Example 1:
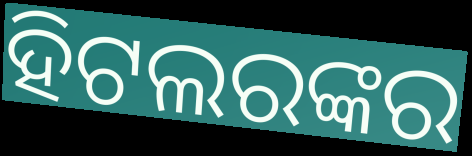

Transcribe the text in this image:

ହିଟଲରଙ୍କର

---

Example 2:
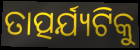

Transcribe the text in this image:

ତାତ୍ପର୍ଯ୍ୟଟିକୁ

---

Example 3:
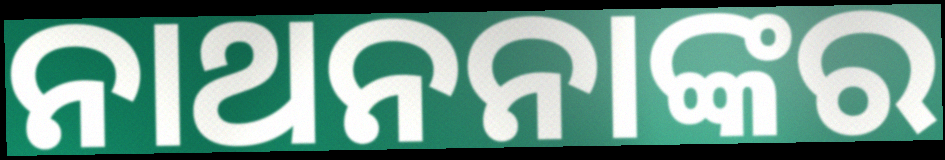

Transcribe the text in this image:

ନାଥନନାଙ୍କର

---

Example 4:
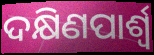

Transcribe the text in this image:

ଦକ୍ଷିଣପାର୍ଶ୍ବ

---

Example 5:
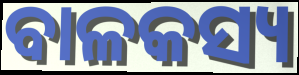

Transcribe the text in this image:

ବାଳକସ୍ୟ